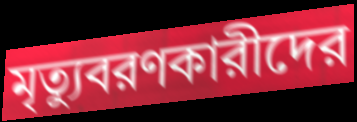
মৃত্যুবরণকারীদের